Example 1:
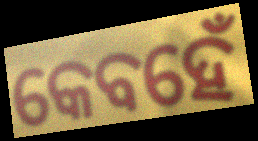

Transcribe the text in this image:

କେବହେଁ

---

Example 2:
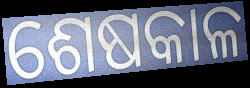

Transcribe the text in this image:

ଶେଷକାଳ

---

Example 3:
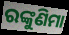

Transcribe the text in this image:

ରଙ୍କୁଣିମା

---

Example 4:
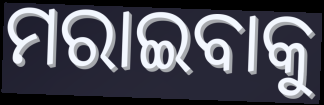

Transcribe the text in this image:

ମରାଇବାକୁ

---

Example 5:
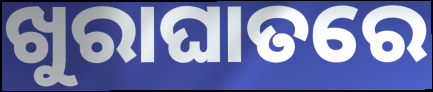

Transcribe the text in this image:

ଖୁରାଘାତରେ